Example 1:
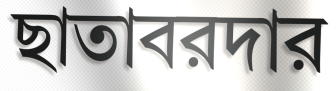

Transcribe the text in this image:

ছাতাবরদার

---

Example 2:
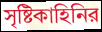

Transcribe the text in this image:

সৃষ্টিকাহিনির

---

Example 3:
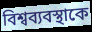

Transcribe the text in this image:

বিশ্বব্যবস্থাকে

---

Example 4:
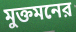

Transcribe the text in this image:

মুক্তমনের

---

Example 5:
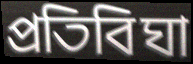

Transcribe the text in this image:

প্রতিবিঘা